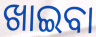
ଖାଇବା